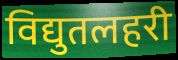
विद्युतलहरी